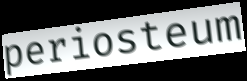
periosteum